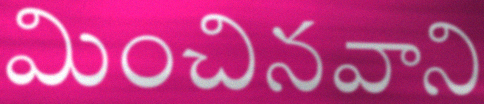
మించినవాని